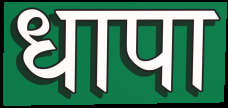
धापा